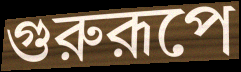
গুরুরূপে